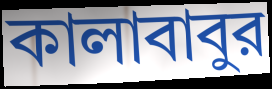
কালাবাবুর